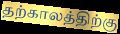
தற்காலத்திற்கு